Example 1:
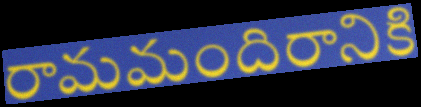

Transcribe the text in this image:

రామమందిరానికి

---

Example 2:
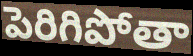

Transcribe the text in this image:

పెరిగిపోతా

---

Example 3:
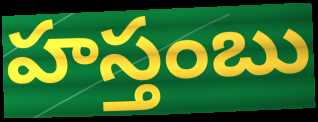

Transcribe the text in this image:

హస్తంబు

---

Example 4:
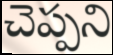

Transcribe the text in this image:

చెప్పని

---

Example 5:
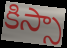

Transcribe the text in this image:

కిస్సా